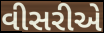
વીસરીએ